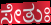
ಸೇತುಃ